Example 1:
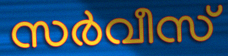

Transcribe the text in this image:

സർവീസ്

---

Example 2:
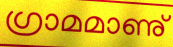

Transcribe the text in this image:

ഗ്രാമമാണു്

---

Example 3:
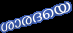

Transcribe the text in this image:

ശാരദയെ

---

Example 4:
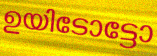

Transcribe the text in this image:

ഉയിടോട്ടോ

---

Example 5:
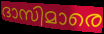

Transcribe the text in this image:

ദാസിമാരെ